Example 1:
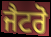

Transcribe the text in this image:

ਜੈਟਰੋ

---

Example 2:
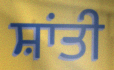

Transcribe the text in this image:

ਸ਼ਾਂਤੀ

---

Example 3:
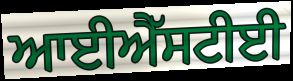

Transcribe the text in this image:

ਆਈਐੱਸਟੀਈ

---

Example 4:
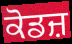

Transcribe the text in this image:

ਕੋਡਜ਼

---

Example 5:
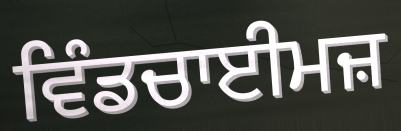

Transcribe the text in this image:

ਵਿੰਡਚਾਈਮਜ਼